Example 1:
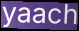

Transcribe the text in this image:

yaach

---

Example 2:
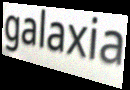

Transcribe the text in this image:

galaxia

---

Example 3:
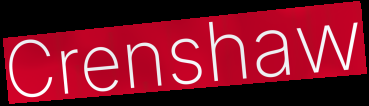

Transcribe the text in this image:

Crenshaw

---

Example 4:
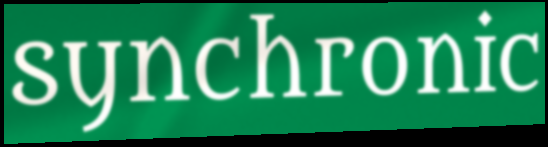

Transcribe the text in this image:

synchronic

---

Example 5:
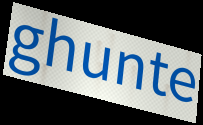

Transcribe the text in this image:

ghunte